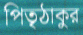
পিতৃঠাকুর